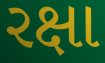
રક્ષા